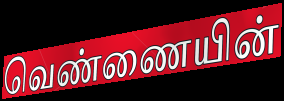
வெண்ணையின்